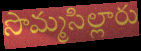
సొమ్మసిల్లారు